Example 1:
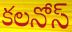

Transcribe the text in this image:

కలనోస్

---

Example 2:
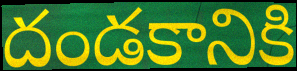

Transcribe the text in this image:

దండకానికి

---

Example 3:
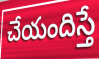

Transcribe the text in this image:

చేయందిస్తే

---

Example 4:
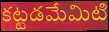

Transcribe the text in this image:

కట్టడమేమిటి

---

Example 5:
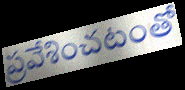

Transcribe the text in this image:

ప్రవేశించటంతో